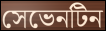
সেভেনটিন